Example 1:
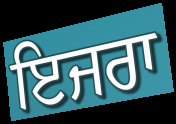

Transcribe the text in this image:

ਇਜਰਾ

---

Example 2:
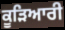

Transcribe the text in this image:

ਕੂੜਿਆਰੀ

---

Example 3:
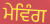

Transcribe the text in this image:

ਮੇਵਿੰਗ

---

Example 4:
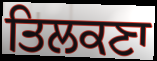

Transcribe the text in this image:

ਤਿਲਕਣਾ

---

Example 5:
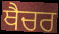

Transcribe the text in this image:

ਥੈਚਰ